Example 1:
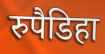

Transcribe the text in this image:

रुपैडिहा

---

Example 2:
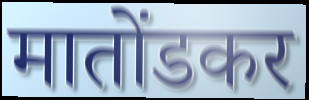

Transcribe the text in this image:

मातोंडकर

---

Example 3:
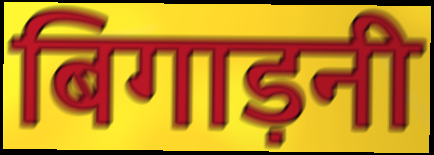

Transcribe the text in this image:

बिगाड़नी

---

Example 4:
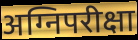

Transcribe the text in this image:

अग्निपरीक्षा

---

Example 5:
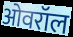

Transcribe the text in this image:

ओवरॉल